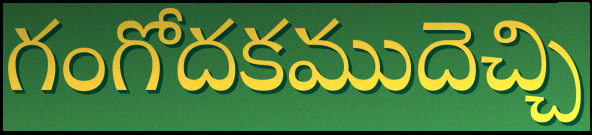
గంగోదకముదెచ్చి